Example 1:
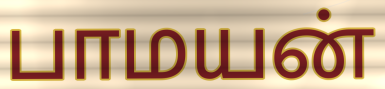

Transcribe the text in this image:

பாமயன்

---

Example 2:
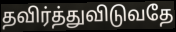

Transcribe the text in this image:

தவிர்த்துவிடுவதே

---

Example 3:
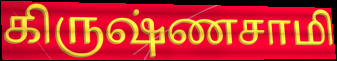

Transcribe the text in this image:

கிருஷ்ணசாமி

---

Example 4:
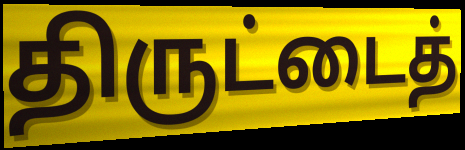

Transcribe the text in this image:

திருட்டைத்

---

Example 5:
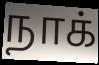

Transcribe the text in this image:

நாக்